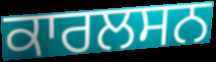
ਕਾਰਲਸਨ